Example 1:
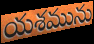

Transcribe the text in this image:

యశమును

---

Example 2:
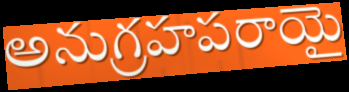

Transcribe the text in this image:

అనుగ్రహపరాయై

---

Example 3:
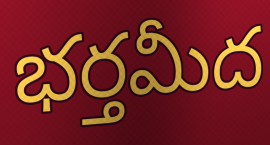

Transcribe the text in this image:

భర్తమీద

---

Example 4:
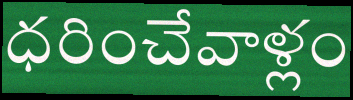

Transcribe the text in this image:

ధరించేవాళ్లం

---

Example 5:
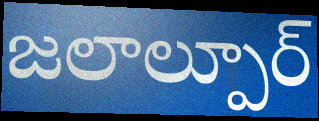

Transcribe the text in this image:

జలాల్పూర్